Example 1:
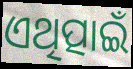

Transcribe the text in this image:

ଏଥିତ୍ପାଇଁ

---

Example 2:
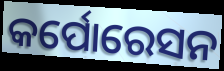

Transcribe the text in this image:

କର୍ପୋରେସନ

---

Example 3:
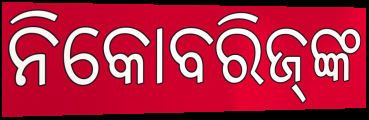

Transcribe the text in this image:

ନିକୋବରିଜ୍‍ଙ୍କ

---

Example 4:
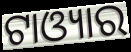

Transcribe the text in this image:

ଟାଓ୍ୟାର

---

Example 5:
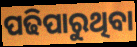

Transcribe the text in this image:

ପଢିପାରୁଥିବା